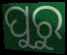
ପୁରୁ